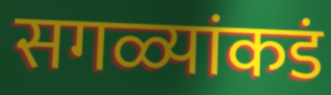
सगळ्यांकडं